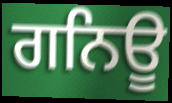
ਗਨਿਊ